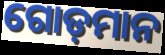
ଗୋଡ଼ମାନ